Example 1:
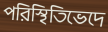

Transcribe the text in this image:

পরিস্থিতিভেদে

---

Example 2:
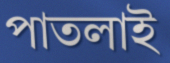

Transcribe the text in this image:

পাতলাই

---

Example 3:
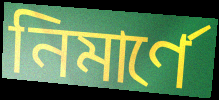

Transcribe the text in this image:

নিমার্ণে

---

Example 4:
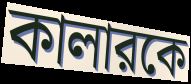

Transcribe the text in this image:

কালারকে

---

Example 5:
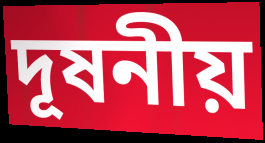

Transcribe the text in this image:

দূষনীয়